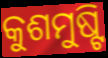
କୁଶମୁଷ୍ଟି